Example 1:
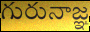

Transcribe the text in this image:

గురునాజ్ఞ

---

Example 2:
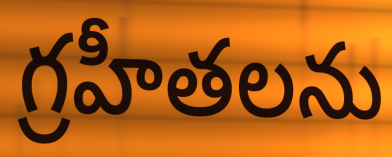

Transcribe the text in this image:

గ్రహీతలను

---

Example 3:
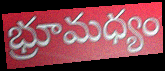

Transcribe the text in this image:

భ్రూమధ్యం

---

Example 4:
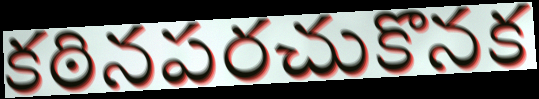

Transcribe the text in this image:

కఠినపరచుకొనక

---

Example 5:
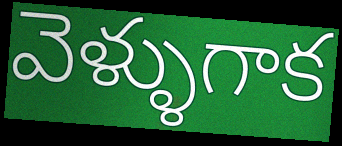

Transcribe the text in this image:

వెళ్ళుగాక